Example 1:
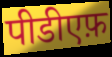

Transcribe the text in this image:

पीडीएफ़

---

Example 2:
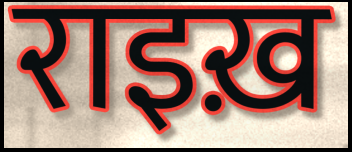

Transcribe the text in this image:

राइख़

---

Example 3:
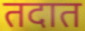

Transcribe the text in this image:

तदात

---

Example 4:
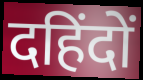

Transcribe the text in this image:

दहिंदों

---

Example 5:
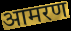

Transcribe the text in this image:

आमरण